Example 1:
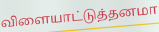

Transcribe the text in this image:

விளையாட்டுத்தனமா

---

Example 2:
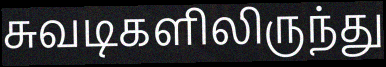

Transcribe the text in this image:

சுவடிகளிலிருந்து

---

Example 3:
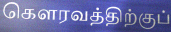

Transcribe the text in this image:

கௌரவத்திற்குப்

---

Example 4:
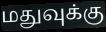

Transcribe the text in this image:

மதுவுக்கு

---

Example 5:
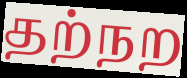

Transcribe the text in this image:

தற்நற